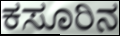
ಕಸೂರಿನ